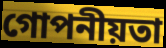
গোপনীয়তা